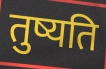
तुष्यति